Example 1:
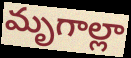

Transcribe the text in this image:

మృగాల్లా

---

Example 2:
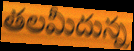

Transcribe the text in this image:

తలమీదున్న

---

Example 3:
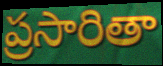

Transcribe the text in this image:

ప్రసారితా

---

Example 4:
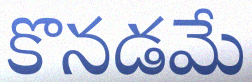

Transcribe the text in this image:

కొనడమే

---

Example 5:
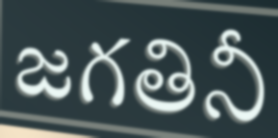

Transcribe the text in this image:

జగతినీ